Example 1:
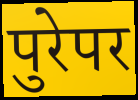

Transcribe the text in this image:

पुरेपर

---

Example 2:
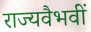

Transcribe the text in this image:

राज्यवैभवीं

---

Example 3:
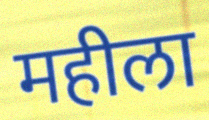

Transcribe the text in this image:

महीला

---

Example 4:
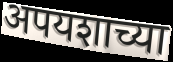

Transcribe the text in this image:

अपयशाच्या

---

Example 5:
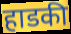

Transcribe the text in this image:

हाडकी